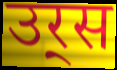
उर्स